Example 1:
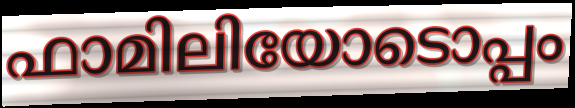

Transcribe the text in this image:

ഫാമിലിയോടൊപ്പം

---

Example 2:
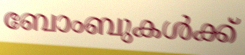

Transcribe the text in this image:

ബോംബുകൾക്ക്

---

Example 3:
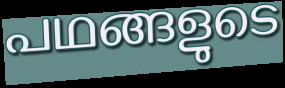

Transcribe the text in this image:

പഥങ്ങളുടെ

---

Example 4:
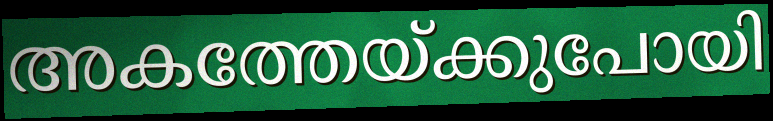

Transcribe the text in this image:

അകത്തേയ്ക്കുപോയി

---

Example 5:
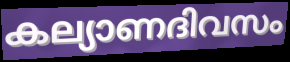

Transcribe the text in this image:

കല്യാണദിവസം